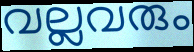
വല്ലവരും